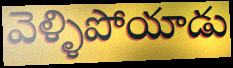
వెళ్ళిపోయాడు